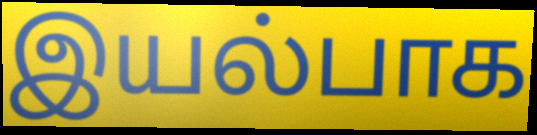
இயல்பாக